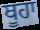
ਥੂਹਾ